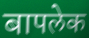
बापलेक